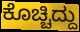
ಕೊಚ್ಚಿದ್ದು